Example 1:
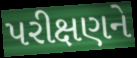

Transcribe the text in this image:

પરીક્ષણને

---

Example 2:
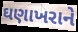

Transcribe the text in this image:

ઘણાખરાને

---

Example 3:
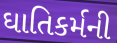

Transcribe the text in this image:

ઘાતિકર્મની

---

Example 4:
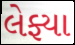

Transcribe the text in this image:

લેફ્યા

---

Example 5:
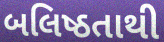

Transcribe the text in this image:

બલિષ્ઠતાથી